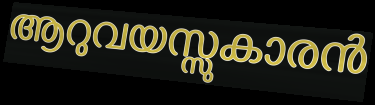
ആറുവയസ്സുകാരൻ